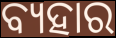
ବ୍ୟହାର